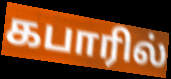
கபாரில்